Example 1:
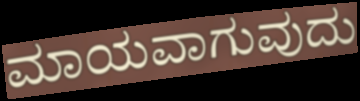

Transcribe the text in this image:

ಮಾಯವಾಗುವುದು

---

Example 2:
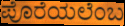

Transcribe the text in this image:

ಪೊರೆಯಲೆಂಬ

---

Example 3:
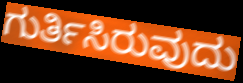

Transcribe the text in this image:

ಗುರ್ತಿಸಿರುವುದು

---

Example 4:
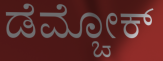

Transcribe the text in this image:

ಡೆಮ್ಚೋಕ್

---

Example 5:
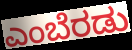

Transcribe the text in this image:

ಎಂಬೆರಡು